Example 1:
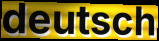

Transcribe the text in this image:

deutsch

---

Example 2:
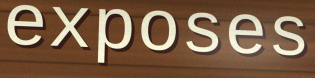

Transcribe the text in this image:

exposes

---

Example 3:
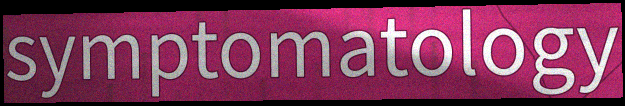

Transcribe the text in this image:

symptomatology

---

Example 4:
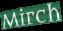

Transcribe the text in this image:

Mirch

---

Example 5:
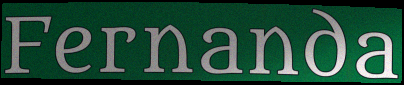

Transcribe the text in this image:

Fernanda